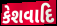
કેશવાદિ